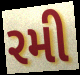
રમી